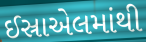
ઈસ્રાએલમાંથી